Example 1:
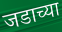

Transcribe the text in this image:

जडाच्या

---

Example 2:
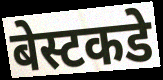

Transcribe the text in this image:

बेस्टकडे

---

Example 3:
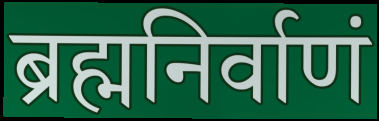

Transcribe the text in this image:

ब्रह्मनिर्वाणं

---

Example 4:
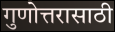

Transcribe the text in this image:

गुणोत्तरासाठी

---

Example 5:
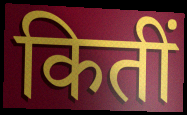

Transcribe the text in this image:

कितीं